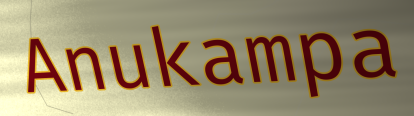
Anukampa